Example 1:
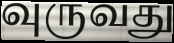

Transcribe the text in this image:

வுருவது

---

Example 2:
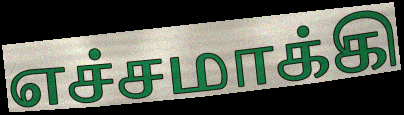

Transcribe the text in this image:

எச்சமாக்கி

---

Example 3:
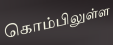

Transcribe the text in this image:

கொம்பிலுள்ள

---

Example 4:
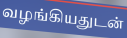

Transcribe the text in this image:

வழங்கியதுடன்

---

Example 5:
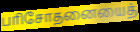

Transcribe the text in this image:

பரிசோதனையைத்